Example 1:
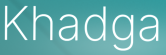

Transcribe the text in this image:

Khadga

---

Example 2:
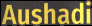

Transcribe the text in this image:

Aushadi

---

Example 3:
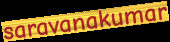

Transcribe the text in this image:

saravanakumar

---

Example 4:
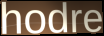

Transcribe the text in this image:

hodre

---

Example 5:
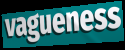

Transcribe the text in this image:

vagueness